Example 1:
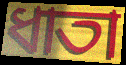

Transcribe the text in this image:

ধাতা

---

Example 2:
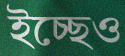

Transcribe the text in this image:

ইচ্ছেও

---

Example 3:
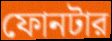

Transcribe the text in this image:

ফোনটার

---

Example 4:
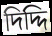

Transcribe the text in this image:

দিদ্দি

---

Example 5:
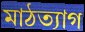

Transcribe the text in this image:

মাঠত্যাগ